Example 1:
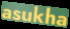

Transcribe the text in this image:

asukha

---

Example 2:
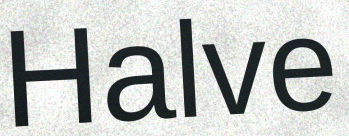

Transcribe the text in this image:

Halve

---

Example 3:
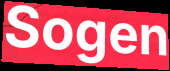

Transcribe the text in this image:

Sogen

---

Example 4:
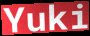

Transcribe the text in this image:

Yuki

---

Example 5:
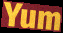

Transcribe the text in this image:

Yum